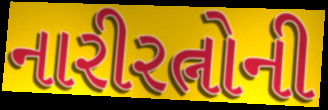
નારીરત્નોની